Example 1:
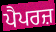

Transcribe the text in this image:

ਪੈਪਰਜ਼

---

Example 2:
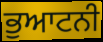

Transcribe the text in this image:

ਭੁਆਟਨੀ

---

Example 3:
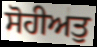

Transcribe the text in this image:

ਸੋਹੀਅਤੁ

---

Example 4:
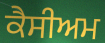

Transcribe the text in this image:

ਕੈਸੀਅਮ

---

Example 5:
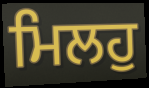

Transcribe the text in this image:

ਮਿਲਹੁ